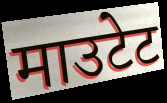
माउटेट